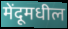
मेंदूमधील